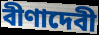
বীণাদেবী